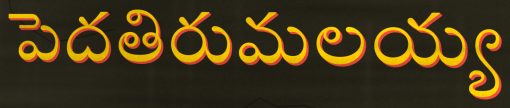
పెదతిరుమలయ్య